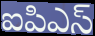
ఐపిఎస్